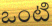
ఒంటి